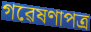
গৱেষণাপত্ৰ